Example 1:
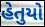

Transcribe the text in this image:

હેતુયો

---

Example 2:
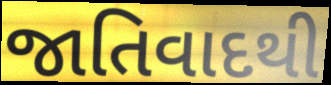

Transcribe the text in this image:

જાતિવાદથી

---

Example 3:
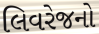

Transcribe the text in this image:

લિવરેજનો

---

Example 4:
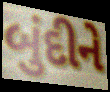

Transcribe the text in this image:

બુંદીને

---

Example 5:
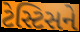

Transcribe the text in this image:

ટેસ્ટિસને